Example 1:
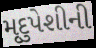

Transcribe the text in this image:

મૃદુપેશીની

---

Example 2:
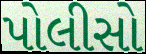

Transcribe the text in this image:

પોલીસો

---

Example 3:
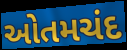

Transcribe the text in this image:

ઓતમચંદ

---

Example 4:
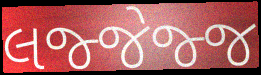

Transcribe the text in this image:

લજ્જેજ્જ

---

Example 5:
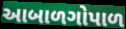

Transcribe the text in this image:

આબાળગોપાળ